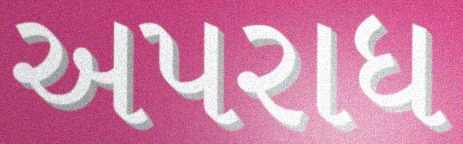
અપરાધ